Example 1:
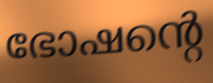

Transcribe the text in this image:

ഭോഷന്റെ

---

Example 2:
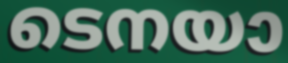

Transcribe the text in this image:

ടെനയാ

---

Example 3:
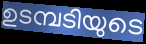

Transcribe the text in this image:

ഉടമ്പടിയുടെ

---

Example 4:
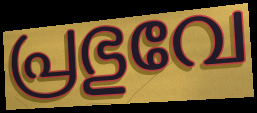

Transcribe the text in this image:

പ്രഭുവേ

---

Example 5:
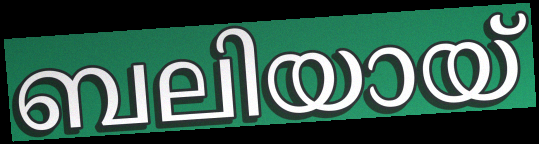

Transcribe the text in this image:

ബലിയായ്